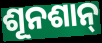
ଶୂନଶାନ୍